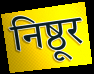
निष्ठूर